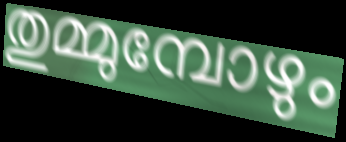
തുമ്മുമ്പോഴും